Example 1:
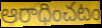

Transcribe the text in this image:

ఆరాధించటం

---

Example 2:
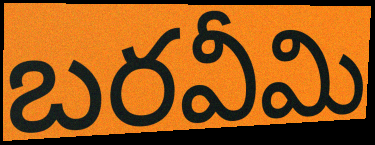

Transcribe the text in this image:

బరవీమి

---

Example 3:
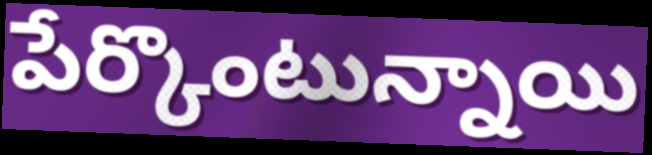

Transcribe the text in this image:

పేర్కొంటున్నాయి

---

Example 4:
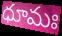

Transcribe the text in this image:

ధూమః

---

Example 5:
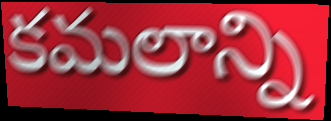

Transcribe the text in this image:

కమలాన్ని